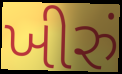
ખીરું